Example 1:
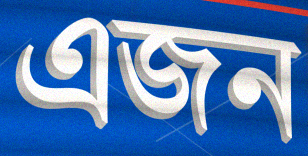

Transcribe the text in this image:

এজন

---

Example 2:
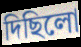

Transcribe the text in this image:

দিছিলো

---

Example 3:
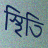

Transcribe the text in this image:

স্থিতি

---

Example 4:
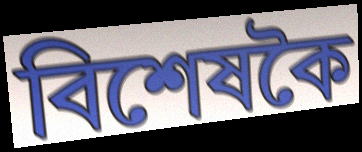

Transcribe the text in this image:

বিশেষকৈ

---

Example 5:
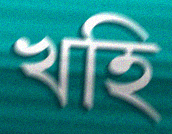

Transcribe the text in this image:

খহি